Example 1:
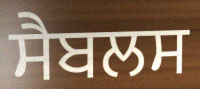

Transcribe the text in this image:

ਸੈਬਲਸ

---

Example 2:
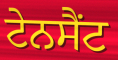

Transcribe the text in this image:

ਟੇਨਸੈਂਟ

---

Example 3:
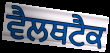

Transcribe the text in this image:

ਵੈਲਥਟੈਕ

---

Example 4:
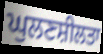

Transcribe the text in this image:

ਘੁਲਣਸ਼ੀਲਤਾ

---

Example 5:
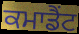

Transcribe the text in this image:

ਕਮਾਡੈਂਟ